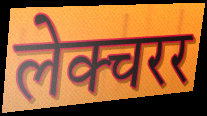
लेक्चरर